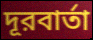
দূরবার্তা